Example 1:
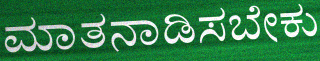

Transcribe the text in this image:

ಮಾತನಾಡಿಸಬೇಕು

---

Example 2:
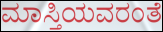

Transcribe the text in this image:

ಮಾಸ್ತಿಯವರಂತೆ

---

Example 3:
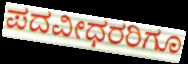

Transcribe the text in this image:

ಪದವೀಧರರಿಗೂ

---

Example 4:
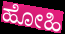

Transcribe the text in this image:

ಹೋಹಿ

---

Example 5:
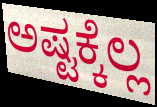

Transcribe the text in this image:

ಅಷ್ಟಕ್ಕೆಲ್ಲ